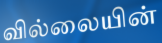
வில்லையின்